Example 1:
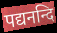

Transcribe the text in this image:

पद्यनन्दि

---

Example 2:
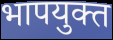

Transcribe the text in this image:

भापयुक्त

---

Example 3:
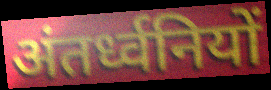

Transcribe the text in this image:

अंतर्ध्वनियों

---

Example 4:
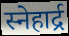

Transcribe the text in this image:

स्नेहार्द्र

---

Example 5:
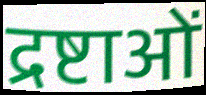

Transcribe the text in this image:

द्रष्टाओं